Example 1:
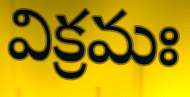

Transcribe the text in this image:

విక్రమః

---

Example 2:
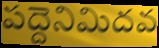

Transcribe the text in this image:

పద్దెనిమిదవ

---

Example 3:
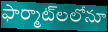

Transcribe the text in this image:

ఫార్మాట్‌లలోనూ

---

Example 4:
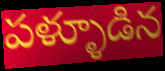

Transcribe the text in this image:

పళ్ళూడిన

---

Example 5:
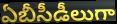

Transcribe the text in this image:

ఏబీసీడీలుగా